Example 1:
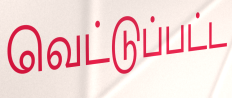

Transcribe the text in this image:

வெட்டுப்பட்ட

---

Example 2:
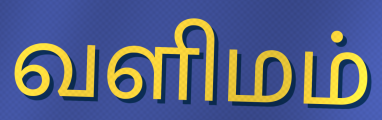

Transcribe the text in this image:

வளிமம்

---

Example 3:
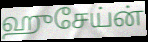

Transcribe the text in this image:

ஹுசேய்ன்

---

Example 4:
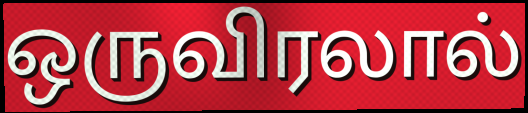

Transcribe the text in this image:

ஒருவிரலால்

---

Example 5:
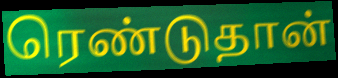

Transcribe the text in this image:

ரெண்டுதான்